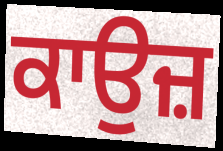
ਕਾਉਜ਼